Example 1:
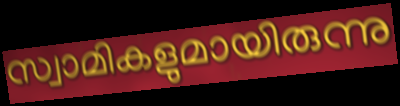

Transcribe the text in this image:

സ്വാമികളുമായിരുന്നു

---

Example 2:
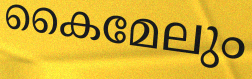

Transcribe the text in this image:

കൈമേലും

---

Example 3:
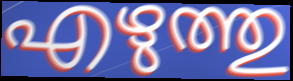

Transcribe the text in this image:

എഴുത്തു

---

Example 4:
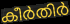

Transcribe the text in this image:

കീർതിർ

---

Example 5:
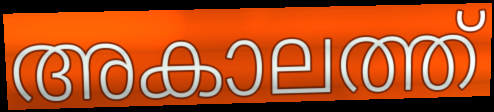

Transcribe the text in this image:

അകാലത്ത്